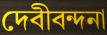
দেবীবন্দনা